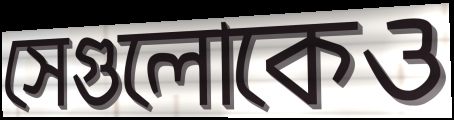
সেগুলোকেও